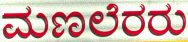
ಮಣಲೆರರು